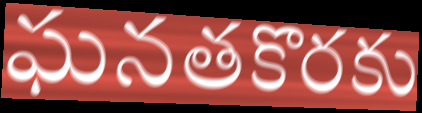
ఘనతకొరకు